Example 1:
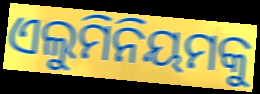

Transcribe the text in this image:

ଏଲୁମିନିୟମକୁ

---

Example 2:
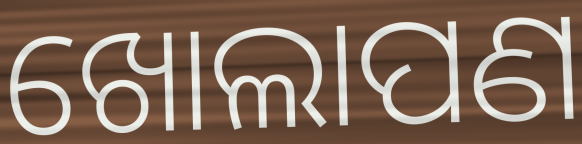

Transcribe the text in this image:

ଖୋଲାପଣ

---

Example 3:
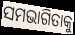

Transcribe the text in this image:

ସମଭାଗିତାକୁ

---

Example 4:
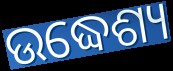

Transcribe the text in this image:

ଉଦ୍ଧେଶ୍ୟ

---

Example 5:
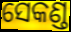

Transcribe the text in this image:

ସେକଣ୍ଡ